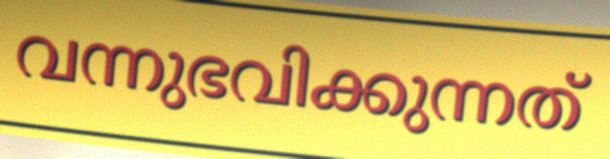
വന്നുഭവിക്കുന്നത്